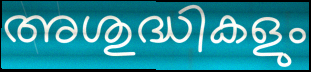
അശുദ്ധികളും